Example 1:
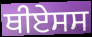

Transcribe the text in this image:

ਥੀਏਸਸ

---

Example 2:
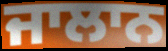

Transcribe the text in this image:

ਜਾਲਾਨ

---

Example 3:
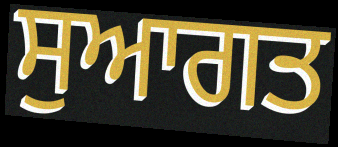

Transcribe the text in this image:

ਸੁਆਗਤ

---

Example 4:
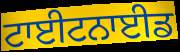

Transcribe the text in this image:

ਟਾਈਟਨਾਈਡ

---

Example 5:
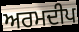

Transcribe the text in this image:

ਅਰਮਦੀਪ